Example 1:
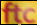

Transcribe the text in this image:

ftc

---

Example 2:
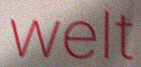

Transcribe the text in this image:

welt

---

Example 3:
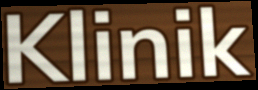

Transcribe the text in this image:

Klinik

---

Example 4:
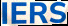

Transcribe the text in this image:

IERS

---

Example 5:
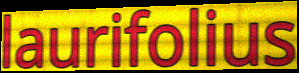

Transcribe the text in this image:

laurifolius